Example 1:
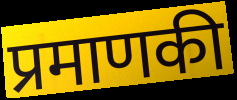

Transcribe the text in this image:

प्रमाणकी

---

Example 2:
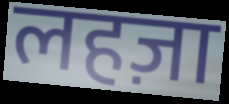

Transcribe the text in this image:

लहज़ा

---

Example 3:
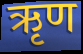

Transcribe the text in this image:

ऋृण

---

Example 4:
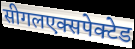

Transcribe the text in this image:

सीगलएक्सपेक्टेड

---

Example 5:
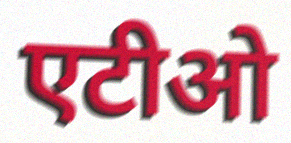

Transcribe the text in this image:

एटीओ